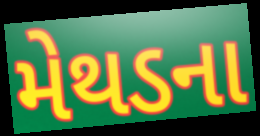
મેથડના